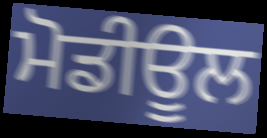
ਮੋਡੀਊਲ